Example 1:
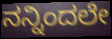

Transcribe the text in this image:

ನನ್ನಿಂದಲೇ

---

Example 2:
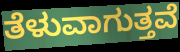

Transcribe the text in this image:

ತೆಳುವಾಗುತ್ತವೆ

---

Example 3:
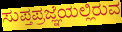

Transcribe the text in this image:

ಸುಪ್ತಪ್ರಜ್ಞೆಯಲ್ಲಿರುವ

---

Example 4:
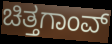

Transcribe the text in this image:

ಚಿತ್ತಗಾಂವ್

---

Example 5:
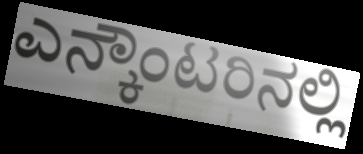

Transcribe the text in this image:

ಎನ್ಕೌಂಟರಿನಲ್ಲಿ